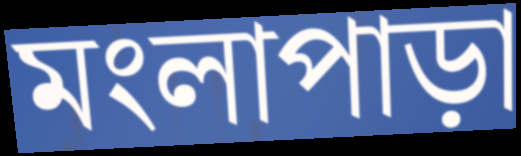
মংলাপাড়া